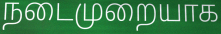
நடைமுறையாக